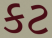
કટ